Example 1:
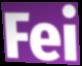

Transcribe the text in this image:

Fei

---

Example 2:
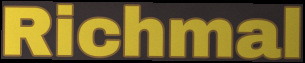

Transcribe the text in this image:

Richmal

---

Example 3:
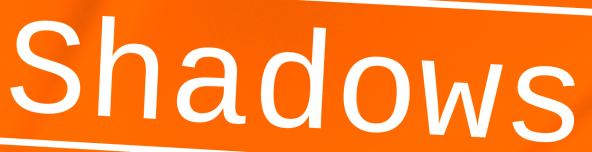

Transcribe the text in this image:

Shadows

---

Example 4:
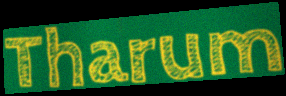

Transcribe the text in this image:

Tharum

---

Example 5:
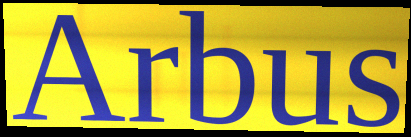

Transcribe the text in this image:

Arbus